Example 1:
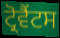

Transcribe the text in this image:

ਟ੍ਰੋਵੈਂਟਸ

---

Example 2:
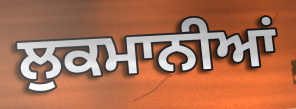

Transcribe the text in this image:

ਲੁਕਮਾਨੀਆਂ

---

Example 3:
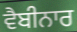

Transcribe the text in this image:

ਵੈਬੀਨਾਰ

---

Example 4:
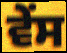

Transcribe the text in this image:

ਵੇਂਸ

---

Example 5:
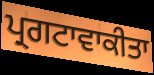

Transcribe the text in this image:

ਪ੍ਰਗਟਾਵਾਕੀਤਾ